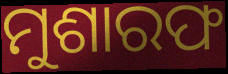
ମୁଶାରଫ